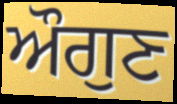
ਔਗੁਣ